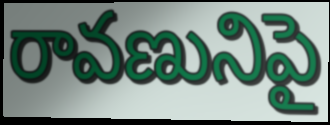
రావణునిపై